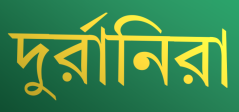
দুর্রানিরা